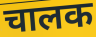
चालक